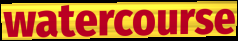
watercourse